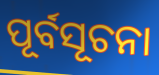
ପୂର୍ବସୂଚନା